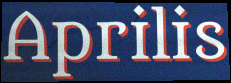
Aprilis